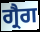
ਗ੍ਰੈਗ